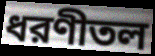
ধরণীতল